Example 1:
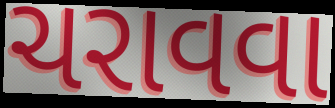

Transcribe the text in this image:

ચરાવવા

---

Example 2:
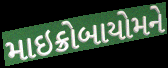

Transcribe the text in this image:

માઇક્રોબાયોમને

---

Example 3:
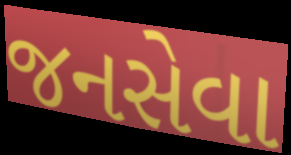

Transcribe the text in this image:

જનસેવા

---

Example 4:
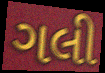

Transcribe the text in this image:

ગલી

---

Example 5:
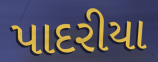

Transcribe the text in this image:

પાદરીયા